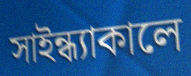
সাইন্ধ্যাকালে